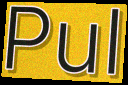
Pul